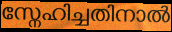
സ്നേഹിച്ചതിനാൽ